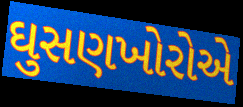
ઘુસણખોરોએ